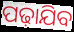
ପଢ଼ାଯିବ